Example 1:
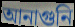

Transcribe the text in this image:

আনাগুনি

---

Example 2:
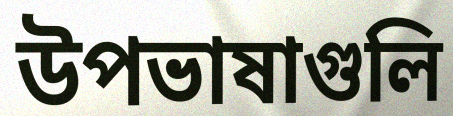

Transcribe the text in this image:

উপভাষাগুলি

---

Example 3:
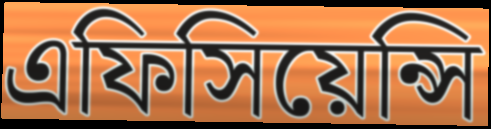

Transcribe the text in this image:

এফিসিয়েন্সি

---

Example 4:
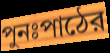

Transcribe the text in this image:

পুনঃপাঠের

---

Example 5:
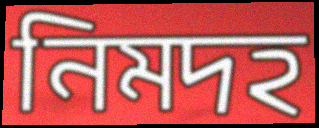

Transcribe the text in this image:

নিমদহ